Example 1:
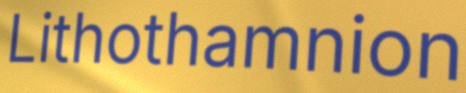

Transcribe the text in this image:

Lithothamnion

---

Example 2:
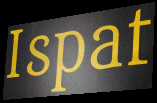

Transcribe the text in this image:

Ispat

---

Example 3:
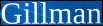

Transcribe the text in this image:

Gillman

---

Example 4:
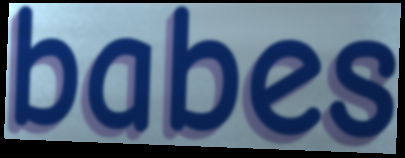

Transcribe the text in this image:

babes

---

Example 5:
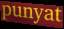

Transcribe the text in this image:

punyat